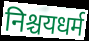
निश्चयधर्म